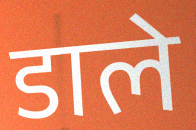
डाले